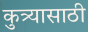
कुत्र्यासाठी